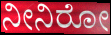
ನೀನಿರೋ